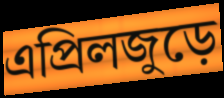
এপ্রিলজুড়ে